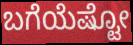
ಬಗೆಯೆಷ್ಟೋ